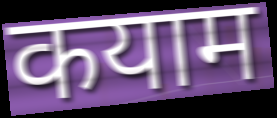
कयाम